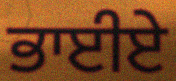
ਭਾਈਏ